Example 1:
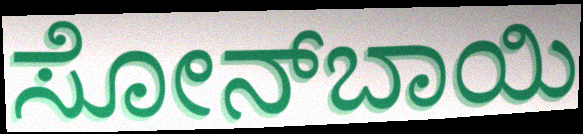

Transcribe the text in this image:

ಸೋನ್‍ಬಾಯಿ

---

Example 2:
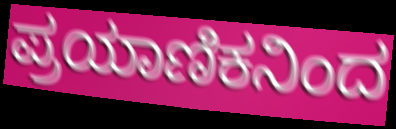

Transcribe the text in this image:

ಪ್ರಯಾಣಿಕನಿಂದ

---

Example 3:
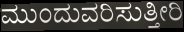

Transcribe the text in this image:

ಮುಂದುವರಿಸುತ್ತೀರಿ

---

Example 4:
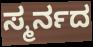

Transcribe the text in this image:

ಸ್ಮರ್ನದ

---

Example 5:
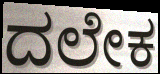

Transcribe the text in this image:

ದಲೇಕ